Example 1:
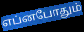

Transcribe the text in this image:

எப்னபோதும்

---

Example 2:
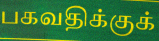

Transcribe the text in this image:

பகவதிக்குக்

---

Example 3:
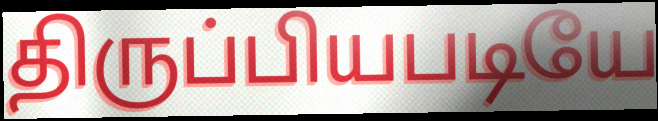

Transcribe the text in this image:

திருப்பியபடியே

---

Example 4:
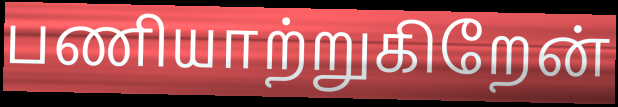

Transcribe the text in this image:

பணியாற்றுகிறேன்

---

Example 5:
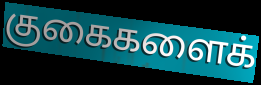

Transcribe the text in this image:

குகைகளைக்